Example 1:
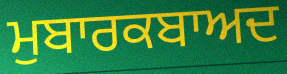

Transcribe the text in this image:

ਮੁਬਾਰਕਬਾਅਦ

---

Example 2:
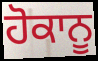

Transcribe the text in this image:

ਹੋਕਾਨੂ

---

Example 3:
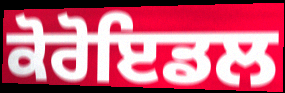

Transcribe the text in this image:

ਕੋਰੋਇਡਲ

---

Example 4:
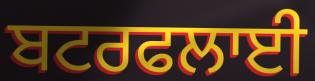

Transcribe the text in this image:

ਬਟਰਫਲਾਈ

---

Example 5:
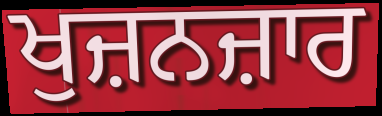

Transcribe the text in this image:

ਖੁਜ਼ਨਜ਼ਾਰ